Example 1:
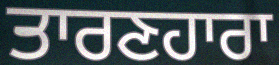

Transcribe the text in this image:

ਤਾਰਣਹਾਰਾ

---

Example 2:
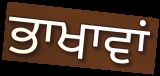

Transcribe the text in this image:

ਭਾਖਾਵਾਂ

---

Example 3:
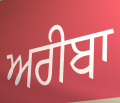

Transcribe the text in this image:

ਅਰੀਬਾ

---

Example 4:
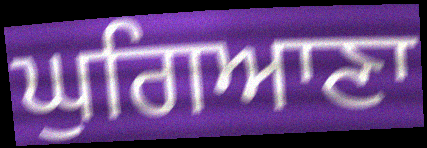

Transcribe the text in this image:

ਘੁਗਿਆਣਾ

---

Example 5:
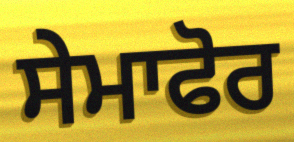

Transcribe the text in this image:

ਸੇਮਾਫੋਰ